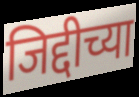
जिद्दीच्या